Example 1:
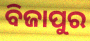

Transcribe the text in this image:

ବିଜାପୁର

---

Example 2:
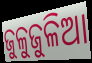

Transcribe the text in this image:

ଜୁଳୁଜୁଳିଆ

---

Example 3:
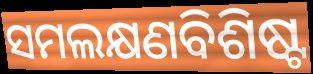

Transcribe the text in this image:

ସମଲକ୍ଷଣବିଶିଷ୍ଟ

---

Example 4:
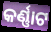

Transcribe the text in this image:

କର୍ଣ୍ଣାଟ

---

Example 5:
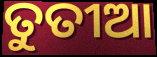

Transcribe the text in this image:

ତୁତୀଆ